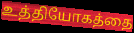
உத்தியோகத்தை